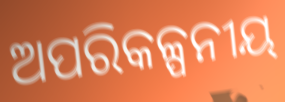
ଅପରିକଳ୍ପନୀୟ